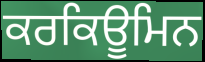
ਕਰਕਿਊਮਿਨ